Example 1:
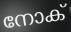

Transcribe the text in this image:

നോക്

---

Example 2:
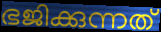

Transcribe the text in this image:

ഭജിക്കുന്നത്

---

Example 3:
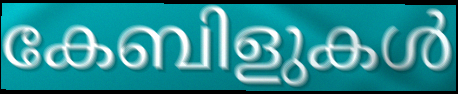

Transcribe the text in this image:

കേബിളുകൾ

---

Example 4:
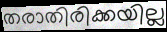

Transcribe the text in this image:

തരാതിരിക്കയില്ല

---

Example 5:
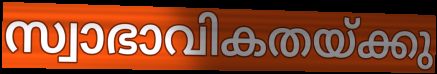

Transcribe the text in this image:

സ്വാഭാവികതയ്ക്കു